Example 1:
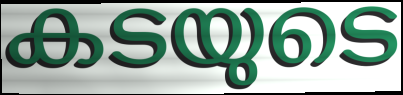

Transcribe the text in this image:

കടയുടെ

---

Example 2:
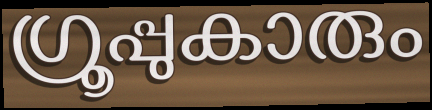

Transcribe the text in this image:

ഗ്രൂപ്പുകാരും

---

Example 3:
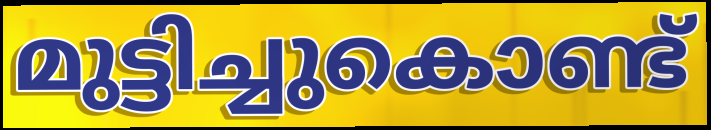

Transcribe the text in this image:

മുട്ടിച്ചുകൊണ്ട്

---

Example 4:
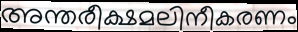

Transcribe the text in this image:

അന്തരീക്ഷമലിനീകരണം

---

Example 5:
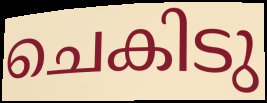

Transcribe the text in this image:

ചെകിടു